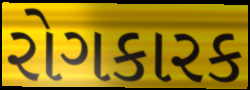
રોગકારક